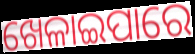
ଖେଳାଇପାରେ